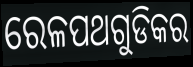
ରେଳପଥଗୁଡିକର